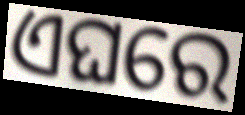
ଏଘରେ